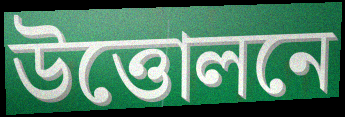
উত্তোলনে